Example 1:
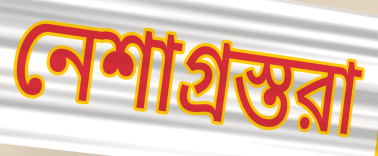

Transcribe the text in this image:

নেশাগ্রস্তরা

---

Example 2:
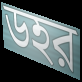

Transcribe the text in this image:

ডহর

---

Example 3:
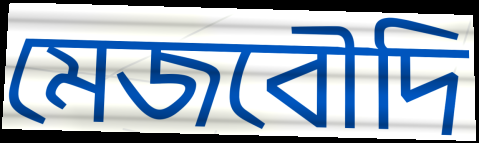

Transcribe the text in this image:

মেজবৌদি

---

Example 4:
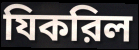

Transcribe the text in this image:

যিকরিল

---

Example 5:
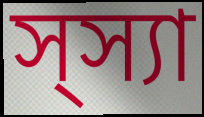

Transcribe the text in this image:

স্স্যা